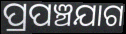
ପ୍ରପଞ୍ଚଯାଗ